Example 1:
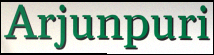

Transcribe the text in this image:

Arjunpuri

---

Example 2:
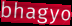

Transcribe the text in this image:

bhagyo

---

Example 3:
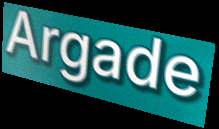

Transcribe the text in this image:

Argade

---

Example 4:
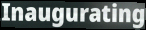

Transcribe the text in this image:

Inaugurating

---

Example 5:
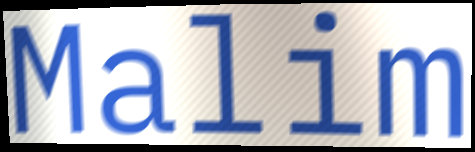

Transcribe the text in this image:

Malim